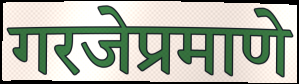
गरजेप्रमाणे